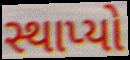
સ્થાપ્યો